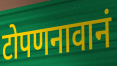
टोपणनावानं